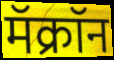
मॅक्रॉन